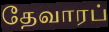
தேவாரப்